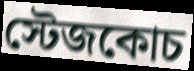
স্টেজকোচ